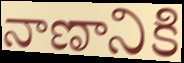
నాణానికి